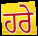
ਹਰੇ